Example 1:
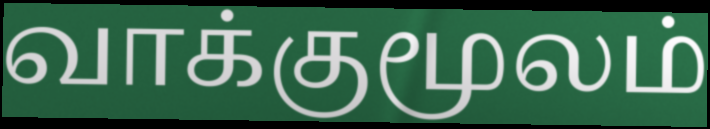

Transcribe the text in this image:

வாக்குமூலம்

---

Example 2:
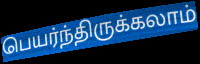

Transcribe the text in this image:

பெயர்ந்திருக்கலாம்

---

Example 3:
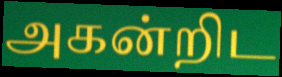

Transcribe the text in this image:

அகன்றிட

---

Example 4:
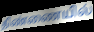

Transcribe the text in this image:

திண்ணையில்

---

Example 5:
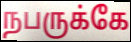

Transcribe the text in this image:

நபருக்கே